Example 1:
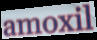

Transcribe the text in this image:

amoxil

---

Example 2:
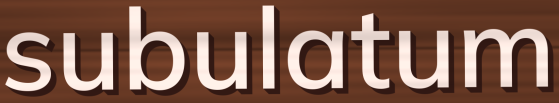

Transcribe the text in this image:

subulatum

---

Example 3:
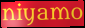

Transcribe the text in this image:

niyamo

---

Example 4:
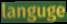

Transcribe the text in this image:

languge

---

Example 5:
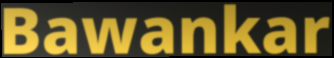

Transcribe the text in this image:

Bawankar